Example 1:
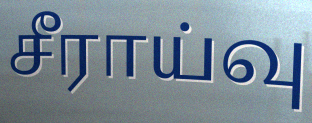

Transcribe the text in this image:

சீராய்வு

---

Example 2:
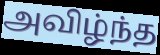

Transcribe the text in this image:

அவிழ்ந்த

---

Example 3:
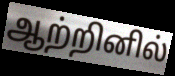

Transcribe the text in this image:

ஆற்றினில்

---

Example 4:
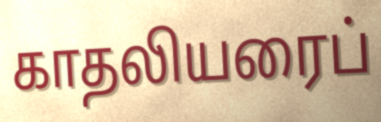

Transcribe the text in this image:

காதலியரைப்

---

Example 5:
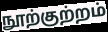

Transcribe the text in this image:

நூற்குற்றம்